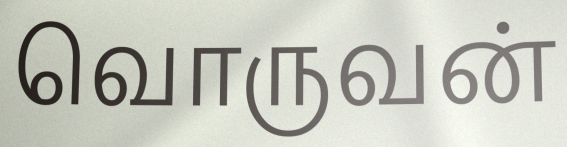
வொருவன்